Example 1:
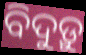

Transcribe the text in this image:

ବିଦୁଡ଼ୁ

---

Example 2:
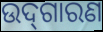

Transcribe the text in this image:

ଉଦ୍‌ଗାରଣ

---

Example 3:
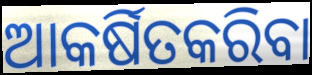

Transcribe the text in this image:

ଆକର୍ଷିତକରିବା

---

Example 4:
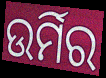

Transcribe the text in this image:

ଉର୍ମିର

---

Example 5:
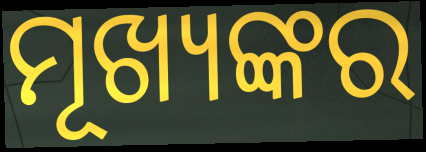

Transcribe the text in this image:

ମୂଖ୍ୟଙ୍କର